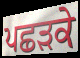
ਪਛੜਕੇ